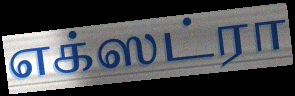
எக்ஸட்ரா